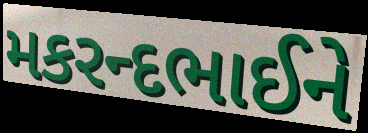
મકરન્દભાઈને